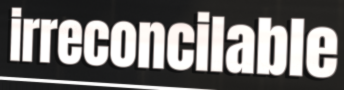
irreconcilable